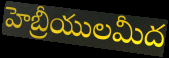
హెబ్రీయులమీద